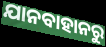
ଯାନବାହାନରୁ